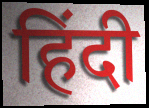
हिंदी